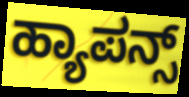
ಹ್ಯಾಪನ್ಸ್